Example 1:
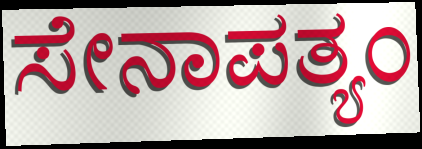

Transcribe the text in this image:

ಸೇನಾಪತ್ಯಂ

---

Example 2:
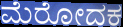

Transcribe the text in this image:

ಮೆರೋದಕ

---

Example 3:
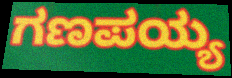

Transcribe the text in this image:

ಗಣಪಯ್ಯ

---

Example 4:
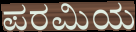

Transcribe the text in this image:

ಪರಮಿಯ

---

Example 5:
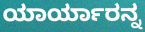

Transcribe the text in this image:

ಯಾರ್ಯಾರನ್ನ